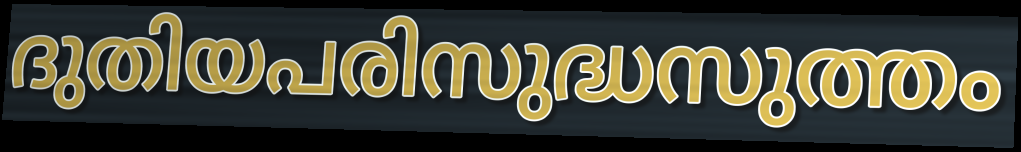
ദുതിയപരിസുദ്ധസുത്തം